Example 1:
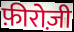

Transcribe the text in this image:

फ़ीरोज़ी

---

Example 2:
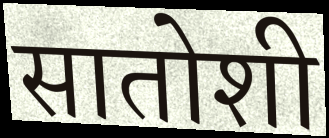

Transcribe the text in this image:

सातोशी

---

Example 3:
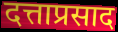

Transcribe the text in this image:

दत्ताप्रसाद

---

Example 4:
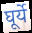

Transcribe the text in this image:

घूर्ये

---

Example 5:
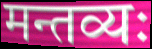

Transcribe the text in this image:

मन्तव्यः